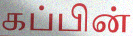
கப்பின்